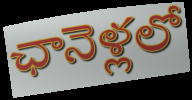
ఛానెళ్లలో